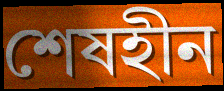
শেষহীন